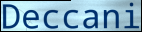
Deccani